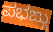
ಪಭಙ್ಗು